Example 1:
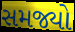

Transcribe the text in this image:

સમજ્યો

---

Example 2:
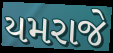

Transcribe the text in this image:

યમરાજે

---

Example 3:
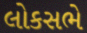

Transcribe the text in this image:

લોકસભે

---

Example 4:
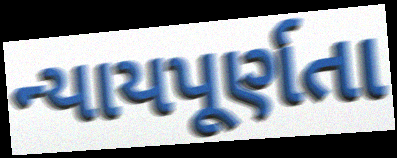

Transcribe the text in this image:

ન્યાયપૂર્ણતા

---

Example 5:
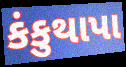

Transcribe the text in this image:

કંકુથાપા